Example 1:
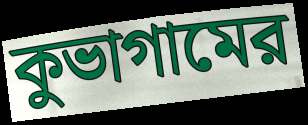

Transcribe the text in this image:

কুভাগামের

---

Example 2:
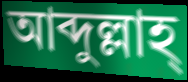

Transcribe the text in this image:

আব্দুল্লাহ্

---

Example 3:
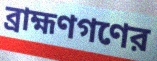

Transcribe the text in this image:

ব্রাহ্মণগণের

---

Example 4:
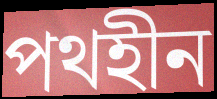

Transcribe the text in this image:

পথহীন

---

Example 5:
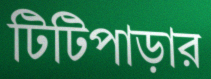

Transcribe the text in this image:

টিটিপাড়ার